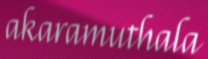
akaramuthala